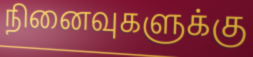
நினைவுகளுக்கு